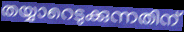
തയ്യാറെടുക്കുന്നതിന്